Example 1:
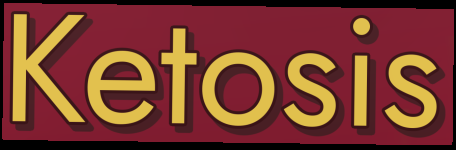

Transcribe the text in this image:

Ketosis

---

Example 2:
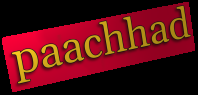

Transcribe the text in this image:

paachhad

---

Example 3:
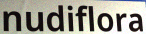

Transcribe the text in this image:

nudiflora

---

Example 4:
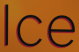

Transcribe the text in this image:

Ice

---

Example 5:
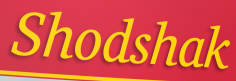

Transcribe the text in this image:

Shodshak